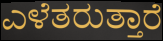
ಎಳೆತರುತ್ತಾರೆ